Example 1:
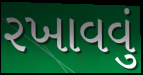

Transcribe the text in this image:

રખાવવું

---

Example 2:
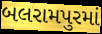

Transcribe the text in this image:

બલરામપુરમાં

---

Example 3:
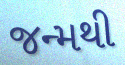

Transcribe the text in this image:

જન્મથી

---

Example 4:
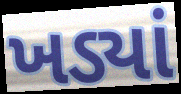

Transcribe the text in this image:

ખડ્યાં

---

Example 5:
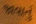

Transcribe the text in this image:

જાવાનું